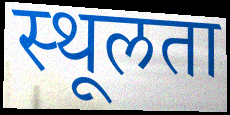
स्थूलता